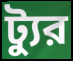
ট্যুর